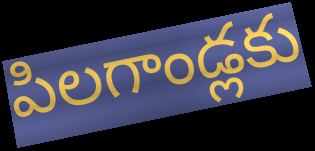
పిలగాండ్లకు